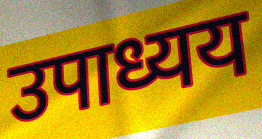
उपाध्यय